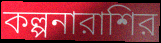
কল্পনারাশির